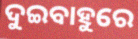
ଦୁଇବାହୁରେ